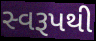
સ્વરૂપથી